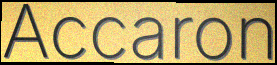
Accaron